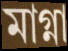
মাগ্না